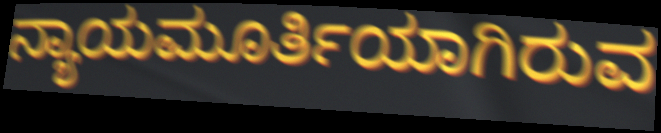
ನ್ಯಾಯಮೂರ್ತಿಯಾಗಿರುವ